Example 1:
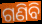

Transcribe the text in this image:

ଗଣିବି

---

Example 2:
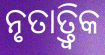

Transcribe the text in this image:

ନୃତାତ୍ତ୍ବିକ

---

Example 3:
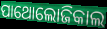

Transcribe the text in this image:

ପାଥୋଲୋଜିକାଲ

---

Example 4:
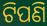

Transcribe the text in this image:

ଟିପଣି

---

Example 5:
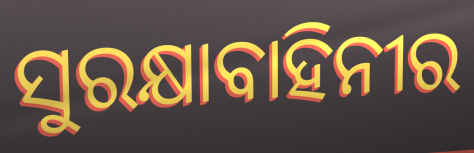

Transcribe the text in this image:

ସୁରକ୍ଷାବାହିନୀର